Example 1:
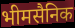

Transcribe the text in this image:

भीमसैनिक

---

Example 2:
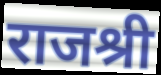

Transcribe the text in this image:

राजश्री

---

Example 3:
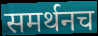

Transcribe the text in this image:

समर्थनच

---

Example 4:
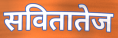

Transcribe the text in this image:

सवितातेज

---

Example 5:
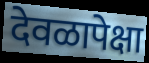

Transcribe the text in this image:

देवळापेक्षा